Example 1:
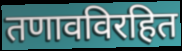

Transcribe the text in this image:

तणावविरहित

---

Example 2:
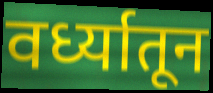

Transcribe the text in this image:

वर्ध्यातून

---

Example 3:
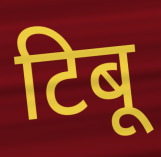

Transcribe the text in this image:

टिबू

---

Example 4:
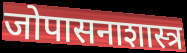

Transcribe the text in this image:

जोपासनाशास्त्र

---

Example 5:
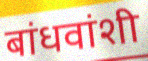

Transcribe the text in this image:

बांधवांशी